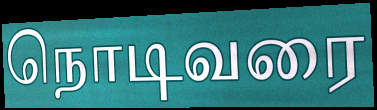
நொடிவரை